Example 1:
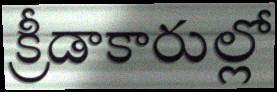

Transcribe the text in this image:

క్రీడాకారుల్లో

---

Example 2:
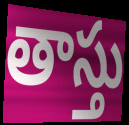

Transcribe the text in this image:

తాస్తు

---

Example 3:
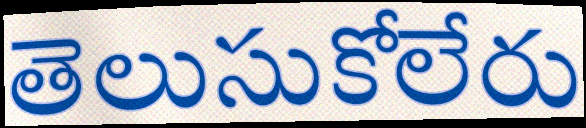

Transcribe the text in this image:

తెలుసుకోలేరు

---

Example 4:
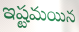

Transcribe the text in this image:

ఇష్టమయిన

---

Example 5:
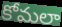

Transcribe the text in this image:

కోమలా